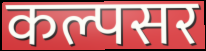
कल्पसर